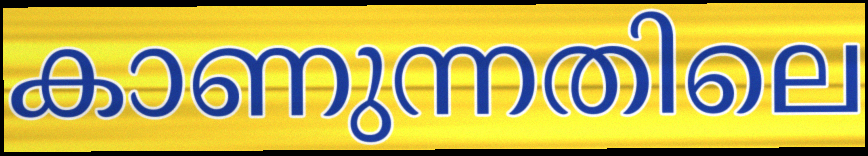
കാണുന്നതിലെ